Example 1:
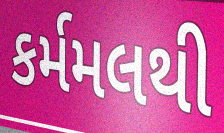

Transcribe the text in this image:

કર્મમલથી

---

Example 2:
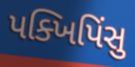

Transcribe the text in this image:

પક્ખિપિંસુ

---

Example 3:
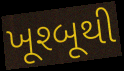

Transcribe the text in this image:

ખૂશ્બૂથી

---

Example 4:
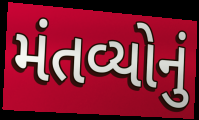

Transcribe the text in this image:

મંતવ્યોનું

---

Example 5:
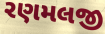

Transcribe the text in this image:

રણમલજી